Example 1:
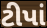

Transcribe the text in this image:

ટીપાં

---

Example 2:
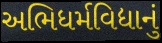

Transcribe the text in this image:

અભિધર્મવિદ્યાનું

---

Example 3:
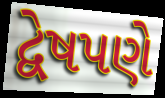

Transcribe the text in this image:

દ્વેષપણે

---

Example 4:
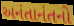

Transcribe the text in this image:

અનંતાનંતનો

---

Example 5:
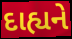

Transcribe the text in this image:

દાહ્યને